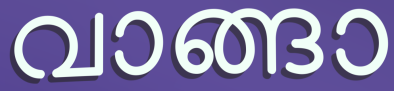
വാങ്ങാ